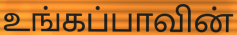
உங்கப்பாவின்